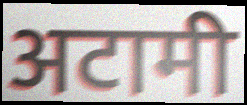
अटामी